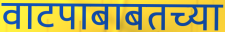
वाटपाबाबतच्या